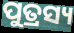
ପୁତ୍ରସ୍ୟ